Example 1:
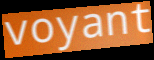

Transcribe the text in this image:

voyant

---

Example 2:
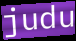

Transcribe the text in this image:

judu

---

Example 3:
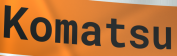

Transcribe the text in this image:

Komatsu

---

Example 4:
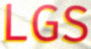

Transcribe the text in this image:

LGS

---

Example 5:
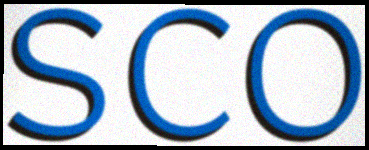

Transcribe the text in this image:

sco